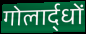
गोलार्द्धों